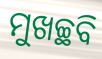
ମୁଖଚ୍ଛବି